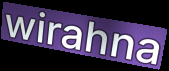
wirahna